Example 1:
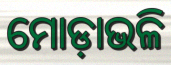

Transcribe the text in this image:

ମୋଡ଼ାଭଳି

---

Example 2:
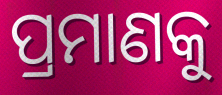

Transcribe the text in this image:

ପ୍ରମାଣକୁ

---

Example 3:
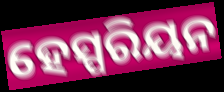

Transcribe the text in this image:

ହେସ୍ପରିୟନ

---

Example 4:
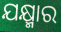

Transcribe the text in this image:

ଯକ୍ଷ୍ମାର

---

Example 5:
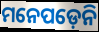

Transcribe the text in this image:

ମନେପଡ଼େନି